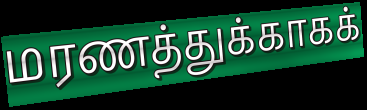
மரணத்துக்காகக்